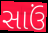
સાઉં